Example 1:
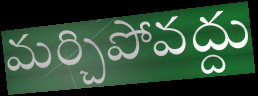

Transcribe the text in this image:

మర్చిపోవద్దు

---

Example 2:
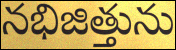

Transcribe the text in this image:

నభిజిత్తును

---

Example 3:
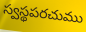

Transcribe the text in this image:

స్వస్థపరచుము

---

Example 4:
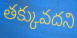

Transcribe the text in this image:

తక్కువదని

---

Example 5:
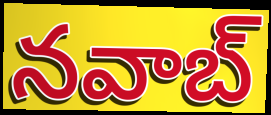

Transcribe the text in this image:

నవాబ్